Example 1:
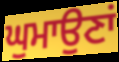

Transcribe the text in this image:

ਘੁਮਾਉਣਾਂ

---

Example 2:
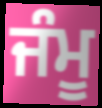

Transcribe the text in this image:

ਜੰਮੂ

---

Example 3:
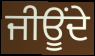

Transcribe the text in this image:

ਜੀਊਂਦੇ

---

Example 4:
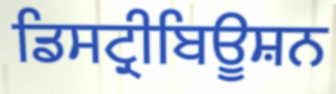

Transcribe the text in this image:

ਡਿਸਟ੍ਰੀਬਿਊਸ਼ਨ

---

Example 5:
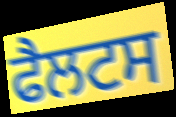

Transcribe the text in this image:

ਫੈਲਟਸ